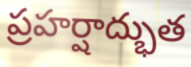
ప్రహర్షాద్భుత